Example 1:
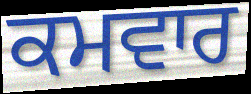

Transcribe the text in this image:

ਕਮਵਾਰ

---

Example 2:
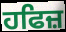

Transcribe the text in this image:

ਹਫਿਜ਼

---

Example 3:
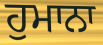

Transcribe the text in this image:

ਹੁਮਾਨਾ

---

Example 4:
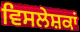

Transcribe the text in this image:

ਵਿਸਲੇਸ਼ਕਾਂ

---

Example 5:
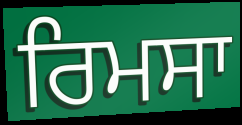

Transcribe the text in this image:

ਰਿਮਸਾ